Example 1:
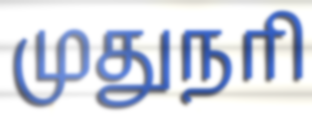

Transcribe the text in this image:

முதுநரி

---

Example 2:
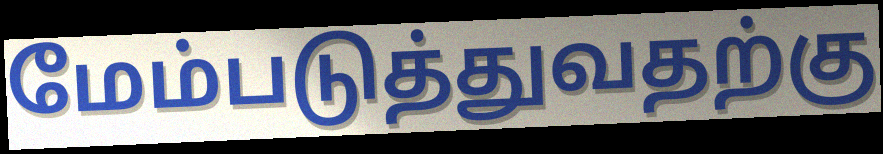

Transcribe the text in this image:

மேம்படுத்துவதற்கு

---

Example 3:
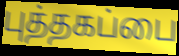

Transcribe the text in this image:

புத்தகப்பை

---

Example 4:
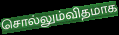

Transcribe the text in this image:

சொல்லும்விதமாக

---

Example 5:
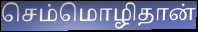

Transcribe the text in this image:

செம்மொழிதான்